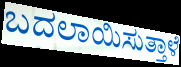
ಬದಲಾಯಿಸುತ್ತಾಳೆ